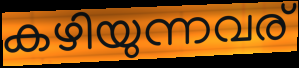
കഴിയുന്നവര്